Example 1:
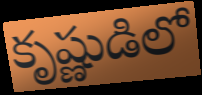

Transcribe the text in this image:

కృష్ణుడిలో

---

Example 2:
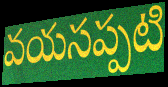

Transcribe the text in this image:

వయసప్పటి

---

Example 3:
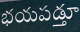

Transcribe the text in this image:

భయపడ్తూ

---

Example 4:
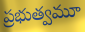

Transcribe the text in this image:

ప్రభుత్వమూ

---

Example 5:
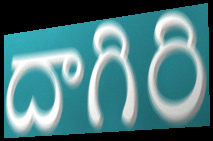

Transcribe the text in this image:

దాగిరి